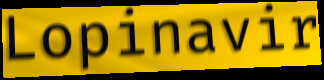
Lopinavir